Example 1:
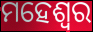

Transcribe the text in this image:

ମହେଶ୍ଵର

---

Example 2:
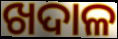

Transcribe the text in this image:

ଖଦାଳ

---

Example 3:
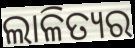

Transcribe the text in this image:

ଲାଳିତ୍ୟର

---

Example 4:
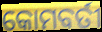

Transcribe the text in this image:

କୋମବର୍ତୀ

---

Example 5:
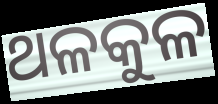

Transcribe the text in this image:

ଥଳକୁଳ